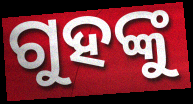
ଗୁହଙ୍କୁ